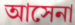
আসেনা